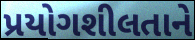
પ્રયોગશીલતાને